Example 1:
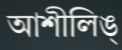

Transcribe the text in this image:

আশীলিঙ্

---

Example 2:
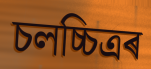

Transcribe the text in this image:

চলচ্চিত্ৰৰ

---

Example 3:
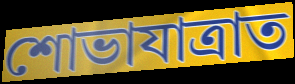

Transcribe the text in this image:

শোভাযাত্ৰাত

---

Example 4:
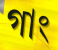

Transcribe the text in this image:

গাং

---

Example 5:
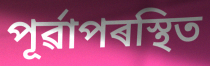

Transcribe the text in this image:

পূৰ্ৱাপৰস্থিত